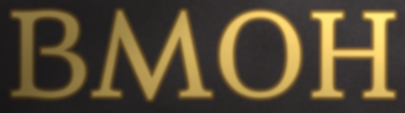
BMOH